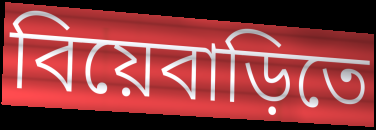
বিয়েবাড়িতে